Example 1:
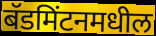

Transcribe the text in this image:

बॅडमिंटनमधील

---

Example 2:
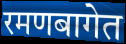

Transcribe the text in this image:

रमणबागेत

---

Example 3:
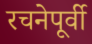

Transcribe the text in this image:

रचनेपूर्वी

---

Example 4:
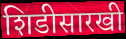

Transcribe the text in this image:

शिडीसारखी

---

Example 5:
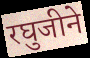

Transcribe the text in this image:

रघुजीने